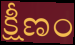
క్షీణం